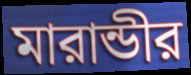
মারান্ডীর